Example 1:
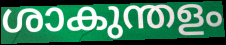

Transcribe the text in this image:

ശാകുന്തളം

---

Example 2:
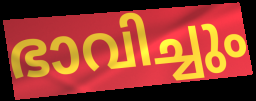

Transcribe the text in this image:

ഭാവിച്ചും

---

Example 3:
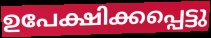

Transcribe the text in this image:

ഉപേക്ഷിക്കപ്പെട്ടു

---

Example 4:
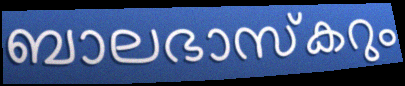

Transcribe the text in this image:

ബാലഭാസ്കറും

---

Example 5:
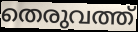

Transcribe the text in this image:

തെരുവത്ത്